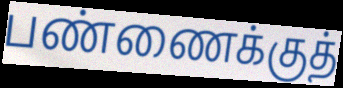
பண்ணைக்குத்